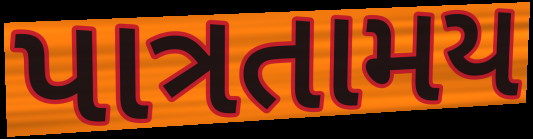
પાત્રતામય